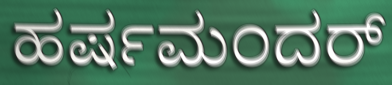
ಹರ್ಷಮಂದರ್